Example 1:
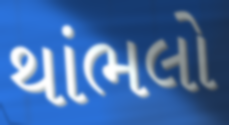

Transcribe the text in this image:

થાંભલો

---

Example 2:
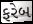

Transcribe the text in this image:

ફરેબ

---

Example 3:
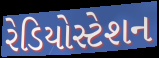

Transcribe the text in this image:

રેડિયોસ્ટેશન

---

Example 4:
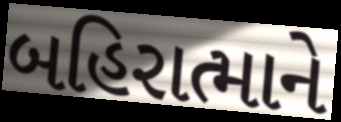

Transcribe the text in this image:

બહિરાત્માને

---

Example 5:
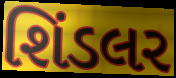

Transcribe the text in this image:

શિંડલર